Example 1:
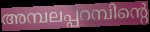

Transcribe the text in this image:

അമ്പലപ്പറമ്പിന്റെ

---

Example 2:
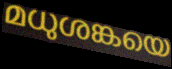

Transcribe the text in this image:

മധുശങ്കയെ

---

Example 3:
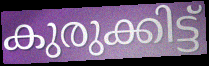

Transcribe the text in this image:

കുരുക്കിട്ട്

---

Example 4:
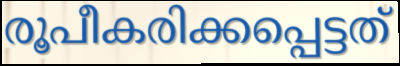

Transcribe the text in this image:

രൂപീകരിക്കപ്പെട്ടത്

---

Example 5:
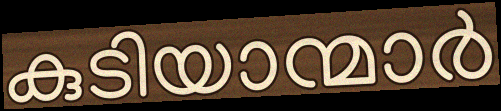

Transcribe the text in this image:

കുടിയാന്മാർ